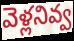
వెళ్లనివ్వ